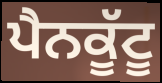
ਪੈਨਕੂੱਟੂ